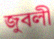
জুবলী